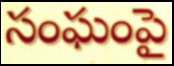
సంఘంపై